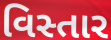
વિસ્તાર